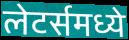
लेटर्समध्ये